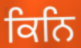
ਕਿਨਿ